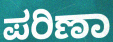
ಪರಿಣಾ